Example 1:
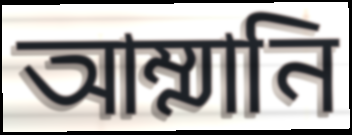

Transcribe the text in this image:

আম্মানি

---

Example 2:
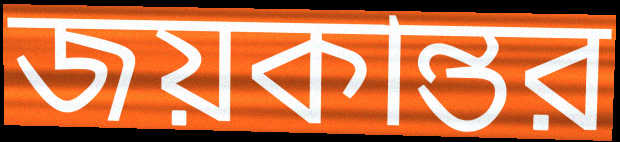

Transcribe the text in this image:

জয়কান্তর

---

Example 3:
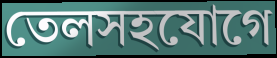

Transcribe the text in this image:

তেলসহযোগে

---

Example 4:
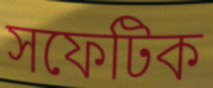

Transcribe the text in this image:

সফেটিক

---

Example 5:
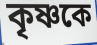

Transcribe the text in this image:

কৃষ্ণকে